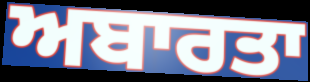
ਅਬਾਰਤਾ